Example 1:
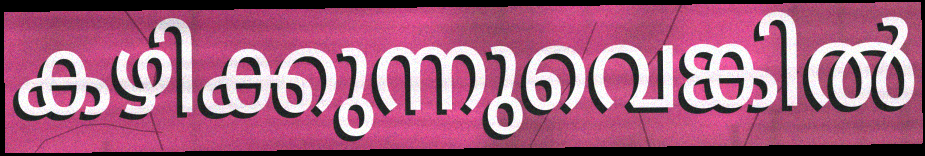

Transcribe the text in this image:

കഴിക്കുന്നുവെങ്കിൽ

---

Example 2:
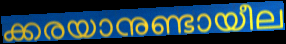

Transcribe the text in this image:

ക്കരയാനുണ്ടായീല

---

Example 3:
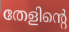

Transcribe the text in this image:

തേളിന്റെ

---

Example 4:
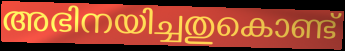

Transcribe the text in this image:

അഭിനയിച്ചതുകൊണ്ട്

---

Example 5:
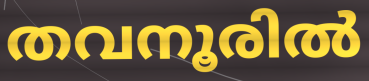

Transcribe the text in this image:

തവനൂരിൽ